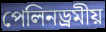
পেলিনড্ৰমীয়